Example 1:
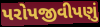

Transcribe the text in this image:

પરોપજીવીપણું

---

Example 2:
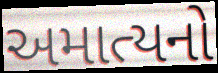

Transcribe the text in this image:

અમાત્યનો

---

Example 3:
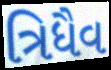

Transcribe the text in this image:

ત્રિધૈવ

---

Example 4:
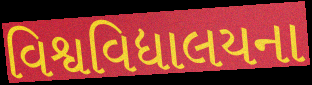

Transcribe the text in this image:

વિશ્વવિદ્યાલયના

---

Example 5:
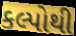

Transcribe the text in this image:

કલ્પોથી